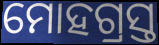
ମୋହଗ୍ରସ୍ତ